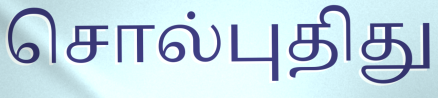
சொல்புதிது